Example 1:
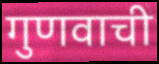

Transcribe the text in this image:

गुणवाची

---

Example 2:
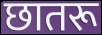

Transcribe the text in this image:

छातरू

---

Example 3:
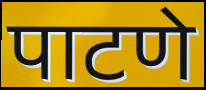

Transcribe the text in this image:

पाटणे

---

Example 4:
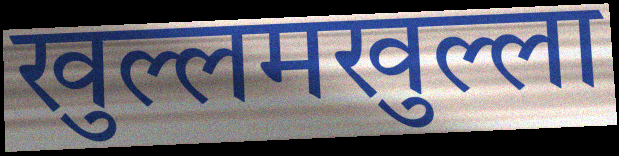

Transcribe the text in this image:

खुल्लमखुल्ला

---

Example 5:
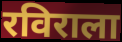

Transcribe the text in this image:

रविराला